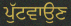
ਪੁੱਟਵਾਉਣ